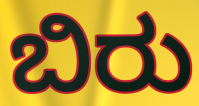
ಬಿರು